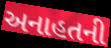
અનાહતની